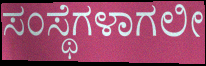
ಸಂಸ್ಥೆಗಳಾಗಲೀ